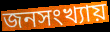
জনসংখ্যায়